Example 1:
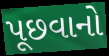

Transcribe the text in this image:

પૂછવાનો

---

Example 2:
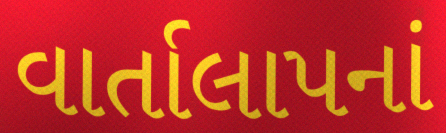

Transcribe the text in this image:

વાર્તાલાપનાં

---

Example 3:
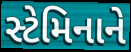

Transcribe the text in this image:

સ્ટેમિનાને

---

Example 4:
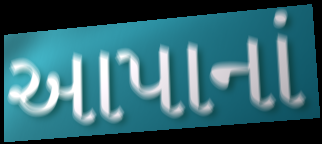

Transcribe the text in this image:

આપાનાં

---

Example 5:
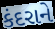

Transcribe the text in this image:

કંદરાને